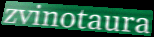
zvinotaura